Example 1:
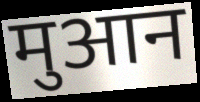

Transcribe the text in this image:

मुआन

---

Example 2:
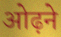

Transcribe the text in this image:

ओढ़ने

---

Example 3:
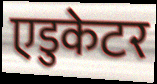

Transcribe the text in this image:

एडुकेटर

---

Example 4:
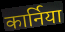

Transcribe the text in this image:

कार्निया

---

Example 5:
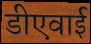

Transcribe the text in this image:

डीएवाई